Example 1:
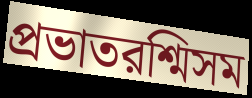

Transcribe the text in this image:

প্রভাতরশ্মিসম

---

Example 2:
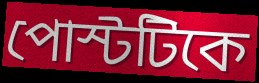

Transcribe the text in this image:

পোস্টটিকে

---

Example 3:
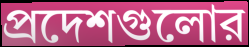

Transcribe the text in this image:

প্রদেশগুলোর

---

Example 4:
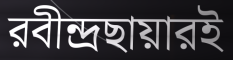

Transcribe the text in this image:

রবীন্দ্রছায়ারই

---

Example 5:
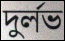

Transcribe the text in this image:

দুর্লভ